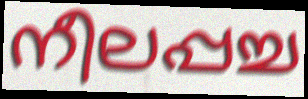
നീലപ്പച്ച